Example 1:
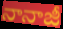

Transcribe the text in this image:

నానాజీ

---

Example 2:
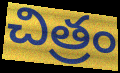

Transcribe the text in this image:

చిత్రం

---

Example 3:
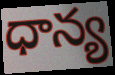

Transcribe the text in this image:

ధాన్య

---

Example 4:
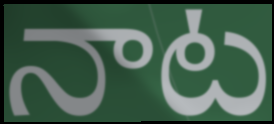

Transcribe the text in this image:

నాట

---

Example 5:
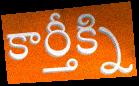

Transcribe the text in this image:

కార్తీక్ని